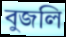
বুজলি